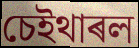
চেইথাৰল